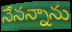
నేనన్నాను